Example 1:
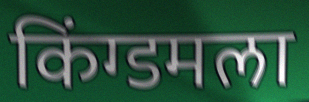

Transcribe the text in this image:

किंग्डमला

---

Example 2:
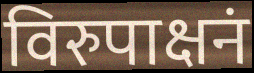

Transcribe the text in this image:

विरुपाक्षनं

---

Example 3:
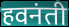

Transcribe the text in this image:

हवनंती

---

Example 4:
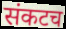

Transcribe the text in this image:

संकटच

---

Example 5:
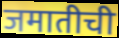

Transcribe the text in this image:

जमातीची